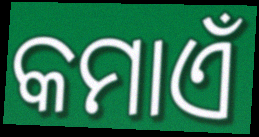
କମାଏଁ